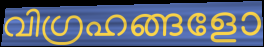
വിഗ്രഹങ്ങളോ